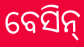
ବେସିନ୍